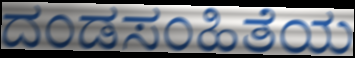
ದಂಡಸಂಹಿತೆಯ